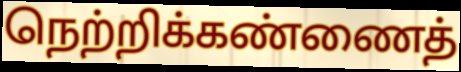
நெற்றிக்கண்ணைத்